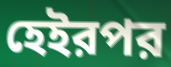
হেইরপর